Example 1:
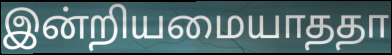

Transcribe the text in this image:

இன்றியமையாததா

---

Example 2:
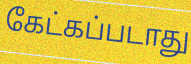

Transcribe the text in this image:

கேட்கப்படாது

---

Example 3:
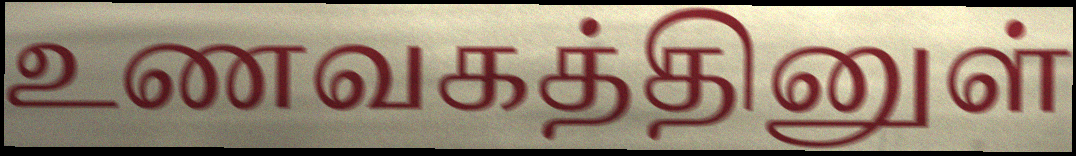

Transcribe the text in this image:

உணவகத்தினுள்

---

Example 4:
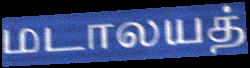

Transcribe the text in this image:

மடாலயத்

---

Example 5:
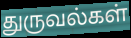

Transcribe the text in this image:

துருவல்கள்